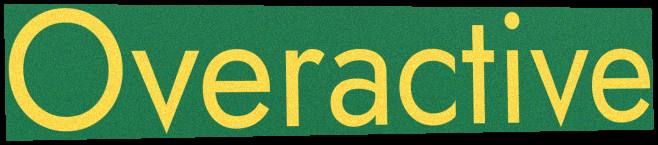
Overactive